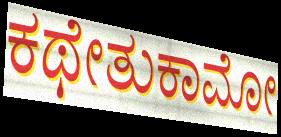
ಕಥೇತುಕಾಮೋ